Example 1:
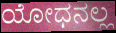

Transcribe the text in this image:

ಯೋಧನಲ್ಲ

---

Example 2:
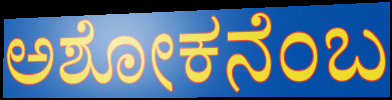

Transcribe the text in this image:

ಅಶೋಕನೆಂಬ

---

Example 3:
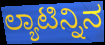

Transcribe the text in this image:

ಲ್ಯಾಟಿನ್ನಿನ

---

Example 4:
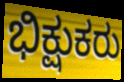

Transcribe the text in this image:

ಭಿಕ್ಷುಕರು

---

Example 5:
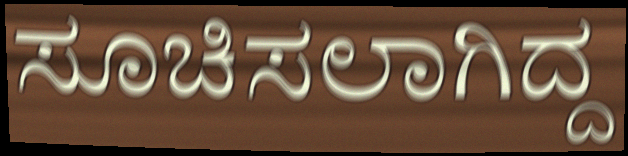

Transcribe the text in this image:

ಸೂಚಿಸಲಾಗಿದ್ದ